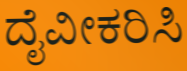
ದೈವೀಕರಿಸಿ